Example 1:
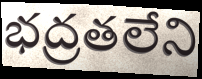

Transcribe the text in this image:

భద్రతలేని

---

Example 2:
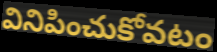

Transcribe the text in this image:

వినిపించుకోవటం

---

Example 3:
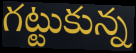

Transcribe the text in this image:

గట్టుకున్న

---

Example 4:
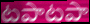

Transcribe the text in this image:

టపాటపా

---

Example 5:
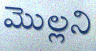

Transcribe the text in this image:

మొల్లని